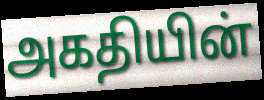
அகதியின்